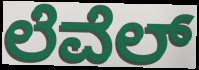
ಲೆವೆಲ್